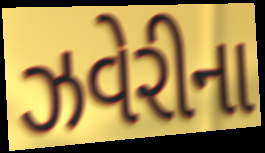
ઝવેરીના